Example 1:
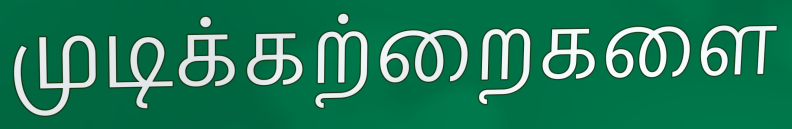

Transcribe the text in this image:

முடிக்கற்றைகளை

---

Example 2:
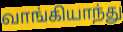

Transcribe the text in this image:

வாங்கியாந்து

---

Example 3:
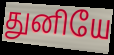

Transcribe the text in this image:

துனியே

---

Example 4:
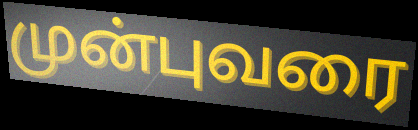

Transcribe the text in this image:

முன்புவரை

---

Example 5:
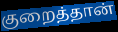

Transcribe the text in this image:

குறைத்தான்